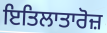
ਇਤਿਲਾਤਾਰੋਜ਼